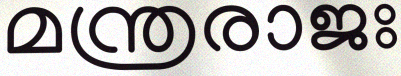
മന്ത്രരാജഃ